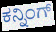
ಕನ್ನಿಂಗ್